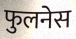
फुलनेस